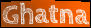
Ghatna